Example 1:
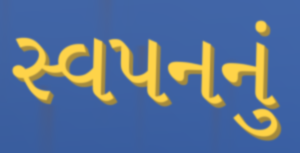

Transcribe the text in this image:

સ્વપનનું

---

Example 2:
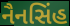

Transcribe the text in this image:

નૈનસિંહ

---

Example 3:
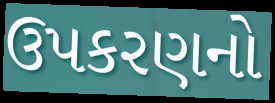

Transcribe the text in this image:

ઉપકરણનો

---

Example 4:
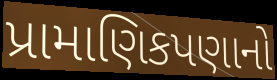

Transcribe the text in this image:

પ્રામાણિકપણાનો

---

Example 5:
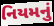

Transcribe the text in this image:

નિયમનું